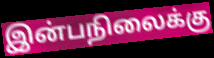
இன்பநிலைக்கு